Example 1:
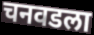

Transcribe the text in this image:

चनवडला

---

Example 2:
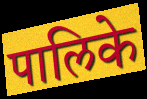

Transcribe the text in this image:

पालिके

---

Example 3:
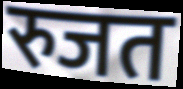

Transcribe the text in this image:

रुजत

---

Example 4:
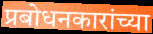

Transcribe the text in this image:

प्रबोधनकारांच्या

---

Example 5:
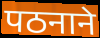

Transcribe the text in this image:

पठनाने